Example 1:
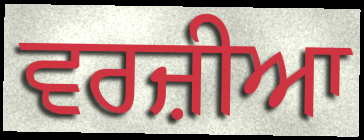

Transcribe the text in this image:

ਵਰਜ਼ੀਆ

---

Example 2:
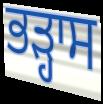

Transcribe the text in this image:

ਭੜ੍ਹਾਸ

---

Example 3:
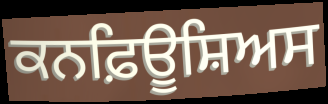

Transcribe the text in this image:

ਕਨਫ਼ਿਊਸ਼ਿਅਸ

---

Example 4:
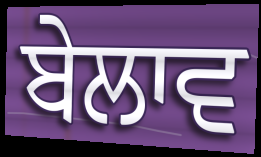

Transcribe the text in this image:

ਬੇਲਾਵ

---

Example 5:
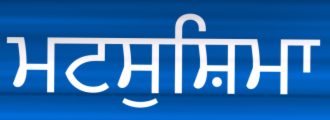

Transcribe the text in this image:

ਮਟਸੁਸ਼ਿਮਾ